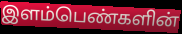
இளம்பெண்களின்